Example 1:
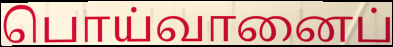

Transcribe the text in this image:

பொய்வானைப்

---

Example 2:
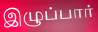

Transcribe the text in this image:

இழுப்பார்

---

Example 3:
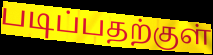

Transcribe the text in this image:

படிப்பதற்குள்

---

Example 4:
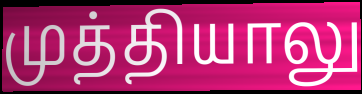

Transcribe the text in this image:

முத்தியாலு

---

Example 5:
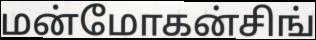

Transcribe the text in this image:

மன்மோகன்சிங்